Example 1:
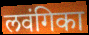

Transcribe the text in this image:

लवंगिका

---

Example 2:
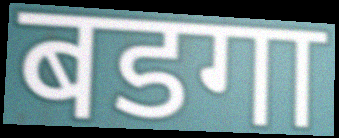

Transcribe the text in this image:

बडगा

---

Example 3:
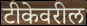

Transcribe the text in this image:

टीकेवरील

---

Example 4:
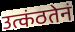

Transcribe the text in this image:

उत्कंठतेनं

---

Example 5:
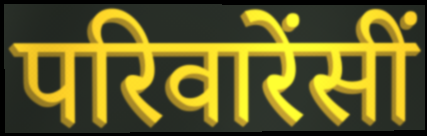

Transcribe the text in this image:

परिवारेंसीं